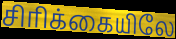
சிரிக்கையிலே